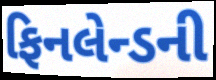
ફિનલેન્ડની